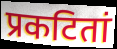
प्रकटितां